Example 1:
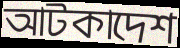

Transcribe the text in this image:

আটকাদেশ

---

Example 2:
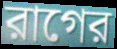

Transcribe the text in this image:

রাগের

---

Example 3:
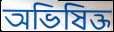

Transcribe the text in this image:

অভিষিক্ত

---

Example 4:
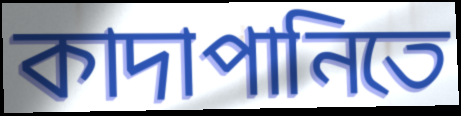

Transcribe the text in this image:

কাদাপানিতে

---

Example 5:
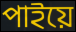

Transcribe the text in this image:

পাইয়ে